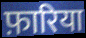
फ़ारिया